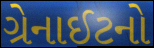
ગ્રેનાઈટનો